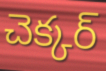
చెక్కర్